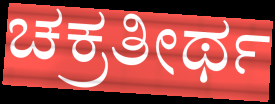
ಚಕ್ರತೀರ್ಥ